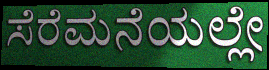
ಸೆರೆಮನೆಯಲ್ಲೇ